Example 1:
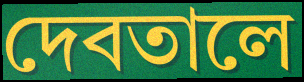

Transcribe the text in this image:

দেবতালে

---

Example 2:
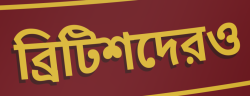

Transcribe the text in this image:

ব্রিটিশদেরও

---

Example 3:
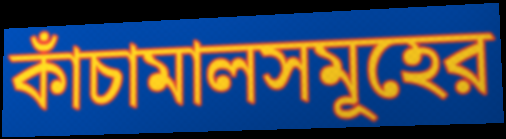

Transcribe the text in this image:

কাঁচামালসমূহের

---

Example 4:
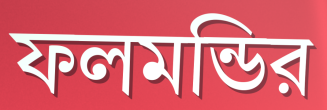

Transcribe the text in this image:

ফলমন্ডির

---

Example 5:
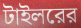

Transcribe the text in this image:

টাইলরের